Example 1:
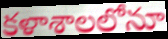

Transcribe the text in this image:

కళాశాలలోనూ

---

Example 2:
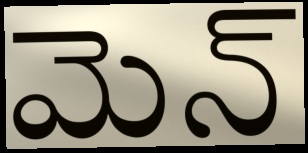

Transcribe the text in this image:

మెన్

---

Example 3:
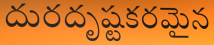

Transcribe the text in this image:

దురదృష్టకరమైన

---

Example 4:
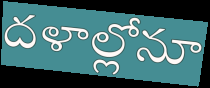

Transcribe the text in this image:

దళాల్లోనూ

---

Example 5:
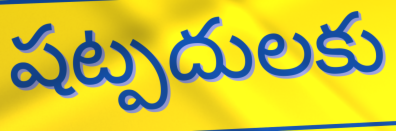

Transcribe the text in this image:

షట్పదులకు